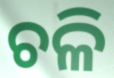
ଚଳି